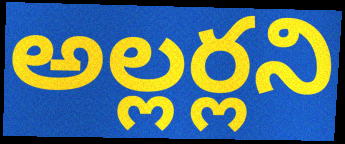
అల్లర్లని